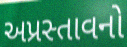
અપ્રસ્તાવનો